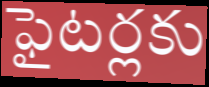
ఫైటర్లకు